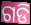
ଗଡି